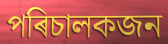
পৰিচালকজন